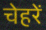
चेहरें